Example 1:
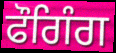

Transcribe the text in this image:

ਫੌਗਿੰਗ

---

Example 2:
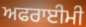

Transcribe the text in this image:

ਅਫਰਾਈਮੀ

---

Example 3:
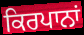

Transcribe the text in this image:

ਕਿਰਪਾਨਾਂ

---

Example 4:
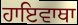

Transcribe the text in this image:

ਹਾਇਵਾਥਾ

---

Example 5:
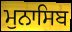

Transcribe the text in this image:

ਮੁਨਾਸਿਬ